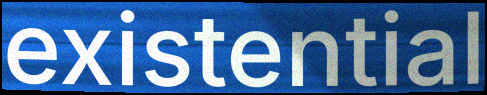
existential